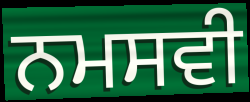
ਨਮਸਵੀ